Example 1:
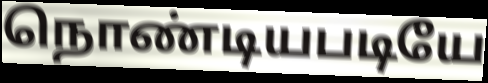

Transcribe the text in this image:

நொண்டியபடியே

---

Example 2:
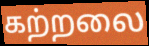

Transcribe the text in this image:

கற்றலை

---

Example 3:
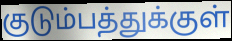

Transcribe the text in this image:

குடும்பத்துக்குள்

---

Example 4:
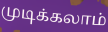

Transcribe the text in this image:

முடிக்கலாம்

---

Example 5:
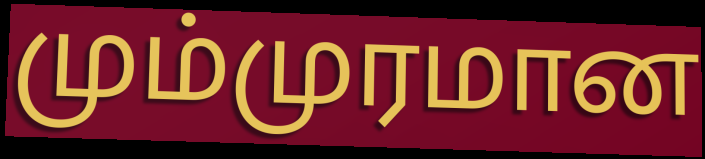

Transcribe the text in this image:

மும்முரமான